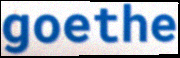
goethe